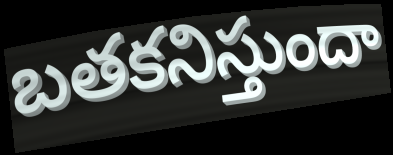
బతకనిస్తుందా